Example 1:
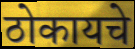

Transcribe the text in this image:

ठोकायचे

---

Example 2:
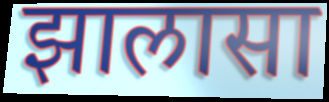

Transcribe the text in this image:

झालासा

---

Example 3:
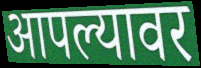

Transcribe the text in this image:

आपल्यावर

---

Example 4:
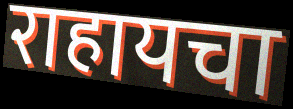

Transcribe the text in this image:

राहायचा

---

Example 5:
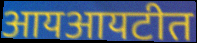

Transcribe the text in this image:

आयआयटीत